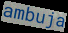
ambuja